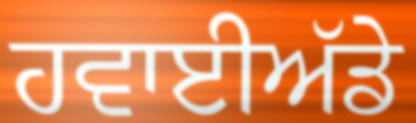
ਹਵਾਈਅੱਡੇ